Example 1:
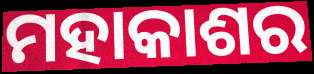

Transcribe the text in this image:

ମହାକାଶର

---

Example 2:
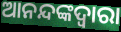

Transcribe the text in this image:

ଆନନ୍ଦଙ୍କଦ୍ୱାରା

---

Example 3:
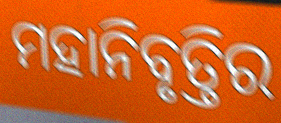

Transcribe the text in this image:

ମହାନିବୃତ୍ତିର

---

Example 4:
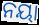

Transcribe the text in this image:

ନୟା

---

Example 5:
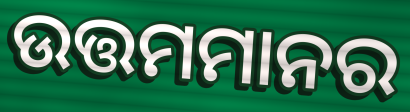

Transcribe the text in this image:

ଉତ୍ତମମାନର